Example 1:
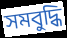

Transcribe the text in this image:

সমবুদ্ধি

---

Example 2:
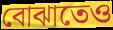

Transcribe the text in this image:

বোঝাতেও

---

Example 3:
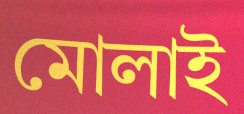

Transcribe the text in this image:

মোলাই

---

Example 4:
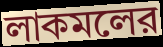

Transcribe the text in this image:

লাকমলের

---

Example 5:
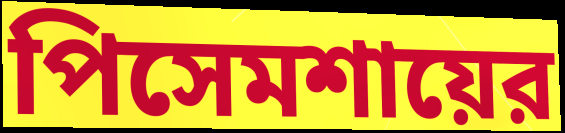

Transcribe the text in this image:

পিসেমশায়ের